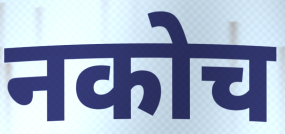
नकोच